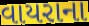
વાયરાના